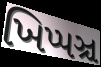
ખિપ્પઞ્ચ